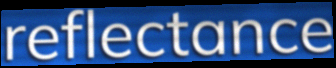
reflectance